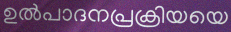
ഉൽപാദനപ്രക്രിയയെ